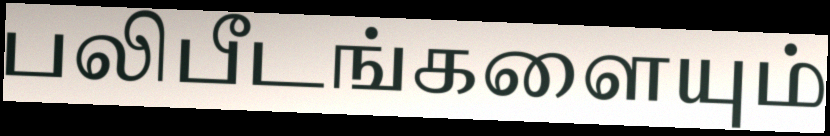
பலிபீடங்களையும்